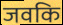
जवकि